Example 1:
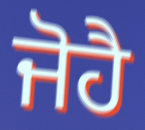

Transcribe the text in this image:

ਜੋਹੈ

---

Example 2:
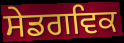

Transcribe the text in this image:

ਸੇਡਗਵਿਕ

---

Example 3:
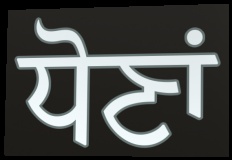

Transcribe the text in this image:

ਧੋਣਾਂ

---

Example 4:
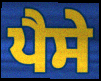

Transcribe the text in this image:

ਪੈਸੇ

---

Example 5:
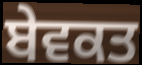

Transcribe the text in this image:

ਬੇਵਕਤ